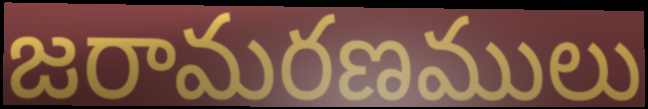
జరామరణములు